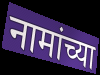
नामांच्या